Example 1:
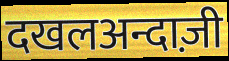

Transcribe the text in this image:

दखलअन्दाज़ी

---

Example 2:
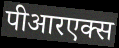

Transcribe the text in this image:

पीआरएक्स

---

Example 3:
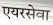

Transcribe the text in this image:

एयरसेवा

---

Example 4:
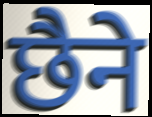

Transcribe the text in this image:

छैने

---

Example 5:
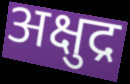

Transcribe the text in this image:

अक्षुद्र